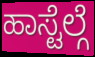
ಹಾಸ್ಟೆಲ್ಗೆ